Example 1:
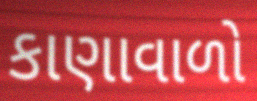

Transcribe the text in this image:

કાણાવાળો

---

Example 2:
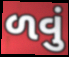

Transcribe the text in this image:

ળવું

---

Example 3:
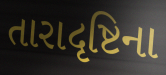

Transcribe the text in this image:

તારાદૃષ્ટિના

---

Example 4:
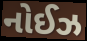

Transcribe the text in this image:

નોઈઝ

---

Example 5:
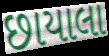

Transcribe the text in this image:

છાયાલા